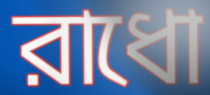
রাধো